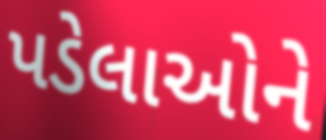
પડેલાઓને